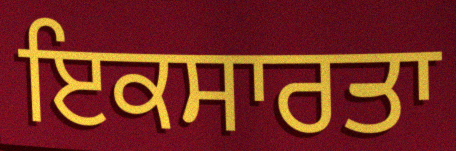
ਇਕਸਾਰਤਾ